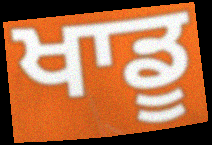
ਖਾਡੂ